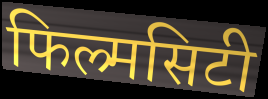
फिल्मसिटी